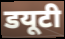
डयूटी